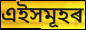
এইসমূহৰ